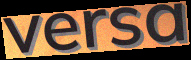
versa